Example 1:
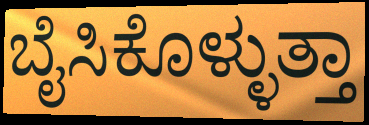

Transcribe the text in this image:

ಬೈಸಿಕೊಳ್ಳುತ್ತಾ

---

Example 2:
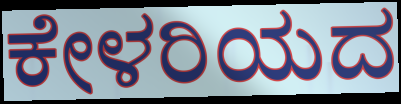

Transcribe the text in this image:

ಕೇಳರಿಯದ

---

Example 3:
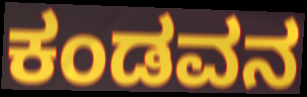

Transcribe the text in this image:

ಕಂಡವನ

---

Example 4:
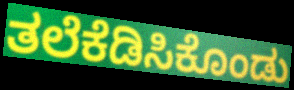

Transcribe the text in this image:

ತಲೆಕೆಡಿಸಿಕೊಂಡು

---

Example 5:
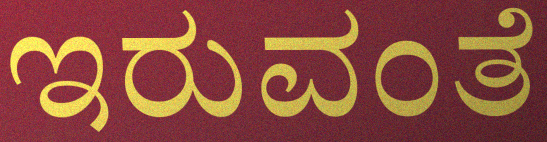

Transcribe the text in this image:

ಇರುವಂತೆ